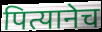
पित्यानेच